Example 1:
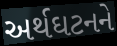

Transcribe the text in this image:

અર્થઘટનને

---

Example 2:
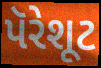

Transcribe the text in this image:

પૅરેશૂટ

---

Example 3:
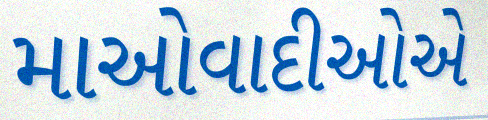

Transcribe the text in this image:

માઓવાદીઓએ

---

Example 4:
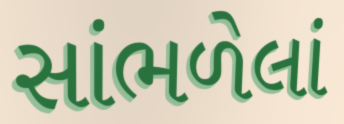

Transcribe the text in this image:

સાંભળેલાં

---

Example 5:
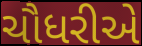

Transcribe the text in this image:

ચૌધરીએ